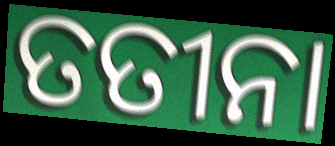
ତତୀନା